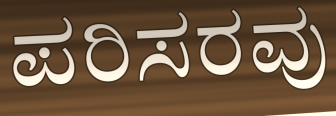
ಪರಿಸರವು